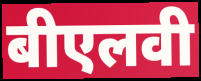
बीएलवी